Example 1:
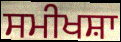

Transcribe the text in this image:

ਸਮੀਖਸ਼ਾ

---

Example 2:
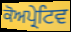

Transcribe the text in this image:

ਕੋਅਪ੍ਰੇਟਿਵ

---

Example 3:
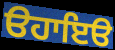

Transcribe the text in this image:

ੳਹਾਇੳ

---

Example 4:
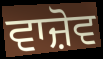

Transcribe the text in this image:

ਵਾਜ਼ੋਵ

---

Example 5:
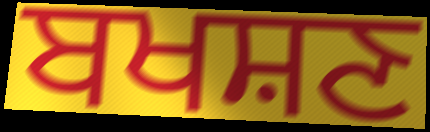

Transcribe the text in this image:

ਬਖਸ਼ਣ